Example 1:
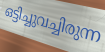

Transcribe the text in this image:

ഒട്ടിച്ചുവച്ചിരുന്ന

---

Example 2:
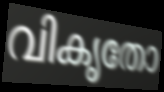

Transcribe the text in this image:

വികൃതോ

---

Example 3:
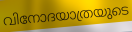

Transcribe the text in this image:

വിനോദയാത്രയുടെ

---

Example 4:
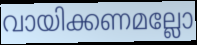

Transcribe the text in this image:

വായിക്കണമല്ലോ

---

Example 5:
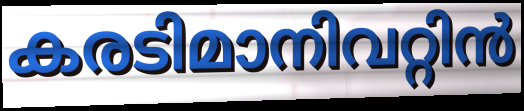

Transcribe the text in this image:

കരടിമാനിവറ്റിൻ